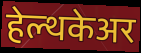
हेल्थकेअर